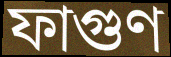
ফাগুণ